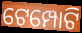
ଟେମ୍ପୋଟି